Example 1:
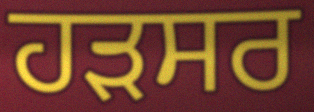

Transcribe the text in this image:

ਹੜਸਰ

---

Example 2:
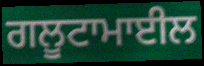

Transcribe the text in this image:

ਗਲੂਟਾਮਾਈਲ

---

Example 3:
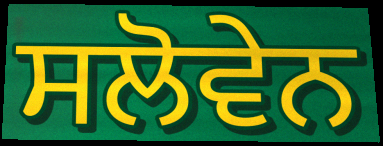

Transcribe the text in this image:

ਸਲੋਵੇਨ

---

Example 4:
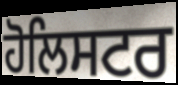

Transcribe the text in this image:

ਹੋਲਿਸਟਰ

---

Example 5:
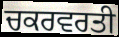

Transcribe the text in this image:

ਚਕਰਵਰਤੀ